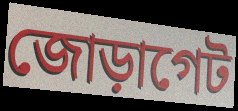
জোড়াগেট